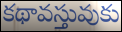
కథావస్తువుకు